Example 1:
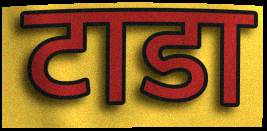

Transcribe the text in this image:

टाडा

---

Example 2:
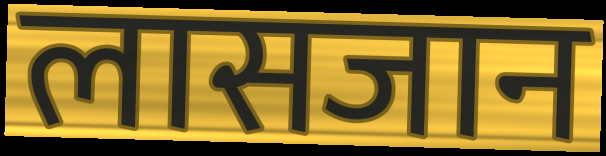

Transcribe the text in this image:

लासजान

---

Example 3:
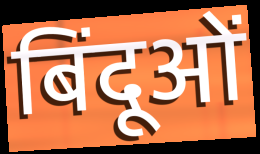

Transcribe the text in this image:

बिंदूओं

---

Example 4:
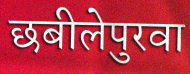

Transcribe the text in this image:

छबीलेपुरवा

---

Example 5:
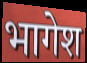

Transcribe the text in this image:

भागेश